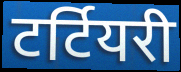
टर्टियरी